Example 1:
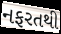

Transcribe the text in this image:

નફરતથી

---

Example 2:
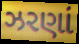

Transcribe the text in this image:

ઝરણાં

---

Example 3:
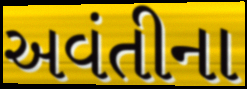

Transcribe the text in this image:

અવંતીના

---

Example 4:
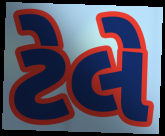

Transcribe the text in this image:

ટેલે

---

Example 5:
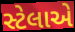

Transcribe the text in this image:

સ્ટેલાએ